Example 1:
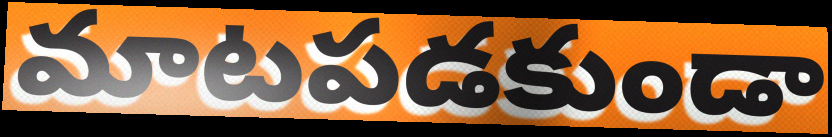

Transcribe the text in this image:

మాటపడకుండా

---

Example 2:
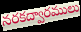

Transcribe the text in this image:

నరకద్వారములు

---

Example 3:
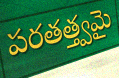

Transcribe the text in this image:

పరతత్త్వమై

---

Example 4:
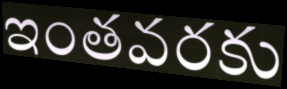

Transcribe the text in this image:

ఇంతవరకు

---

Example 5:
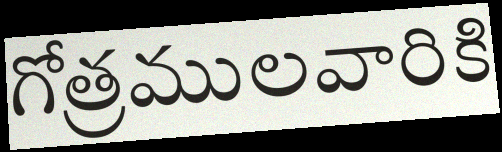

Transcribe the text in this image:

గోత్రములవారికి